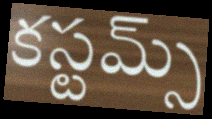
కస్టమ్స్